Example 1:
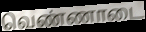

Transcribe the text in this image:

வெண்ணாடை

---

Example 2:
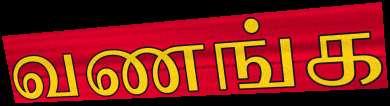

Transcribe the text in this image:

வணங்க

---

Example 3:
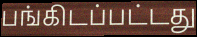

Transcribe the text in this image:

பங்கிடப்பட்டது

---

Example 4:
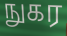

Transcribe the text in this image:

நுகர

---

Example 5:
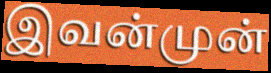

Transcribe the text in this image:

இவன்முன்